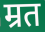
म्रत